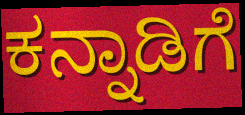
ಕನ್ನಾಡಿಗೆ